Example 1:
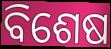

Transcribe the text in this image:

ବିଶେଷ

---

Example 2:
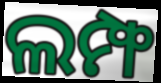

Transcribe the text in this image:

ଲମ୍ଫ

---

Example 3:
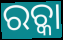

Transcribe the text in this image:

ରଚ୍କା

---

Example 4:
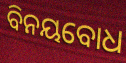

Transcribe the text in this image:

ବିନୟବୋଧ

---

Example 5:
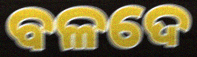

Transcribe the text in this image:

ବଳଦେ